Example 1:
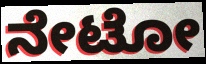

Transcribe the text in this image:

ನೇಟೋ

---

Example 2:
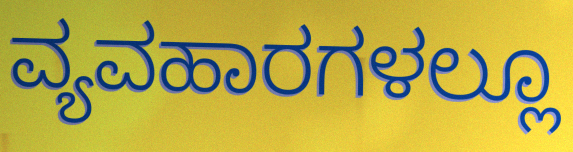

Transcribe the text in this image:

ವ್ಯವಹಾರಗಳಲ್ಲೂ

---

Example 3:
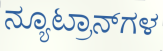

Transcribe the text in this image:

ನ್ಯೂಟ್ರಾನ್‌ಗಳ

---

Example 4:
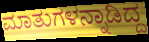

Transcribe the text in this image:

ಮಾತುಗಳನ್ನಾಡಿದ್ದ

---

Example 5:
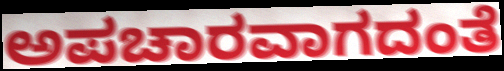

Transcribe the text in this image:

ಅಪಚಾರವಾಗದಂತೆ